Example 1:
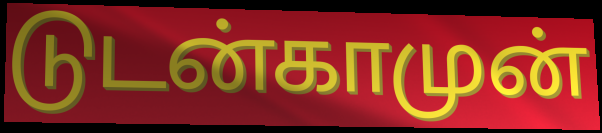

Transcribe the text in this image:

டுடன்காமுன்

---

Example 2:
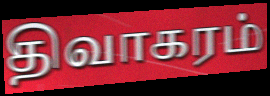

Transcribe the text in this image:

திவாகரம்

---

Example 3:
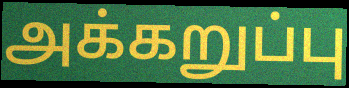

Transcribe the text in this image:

அக்கறுப்பு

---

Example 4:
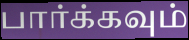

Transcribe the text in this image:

பார்க்கவும்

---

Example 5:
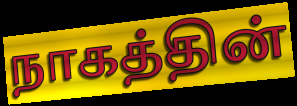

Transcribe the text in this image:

நாகத்தின்